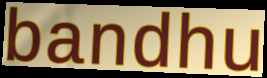
bandhu